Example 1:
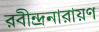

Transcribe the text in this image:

রবীন্দ্রনারায়ণ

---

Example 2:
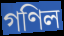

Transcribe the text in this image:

গণিল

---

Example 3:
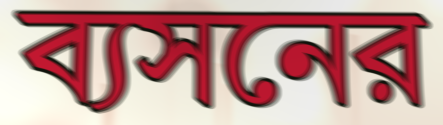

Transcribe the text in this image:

ব্যসনের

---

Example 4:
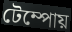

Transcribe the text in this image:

টেম্পোয়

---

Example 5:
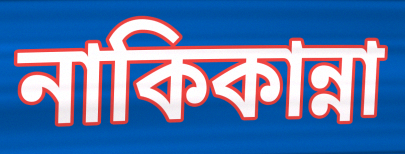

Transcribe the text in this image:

নাকিকান্না